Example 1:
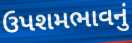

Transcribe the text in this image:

ઉપશમભાવનું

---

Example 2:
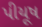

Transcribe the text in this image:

પીયૂષ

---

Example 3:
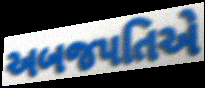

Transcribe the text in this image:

અબજપતિએ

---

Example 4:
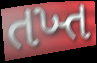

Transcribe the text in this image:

તખ્ત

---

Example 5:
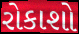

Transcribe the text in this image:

રોકાશો